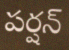
పర్షన్